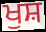
ਖੁਸ਼